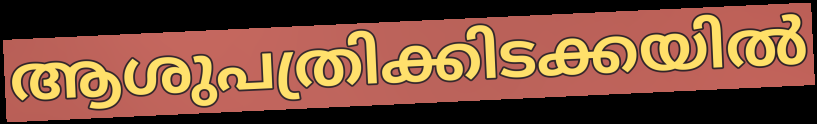
ആശുപത്രിക്കിടക്കയിൽ